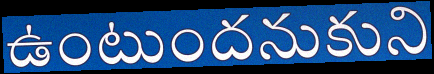
ఉంటుందనుకుని